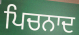
ਪਿਚਨਾਦ